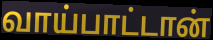
வாய்பாட்டான்